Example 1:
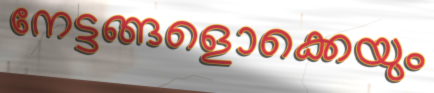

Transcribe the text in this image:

നേട്ടങ്ങളൊക്കെയും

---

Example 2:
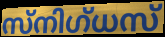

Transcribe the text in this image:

സ്നിഗ്ധസ്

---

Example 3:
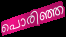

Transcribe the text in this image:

പൊരിഞ്ഞ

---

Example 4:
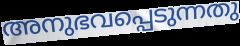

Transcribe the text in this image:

അനുഭവപ്പെടുന്നതു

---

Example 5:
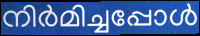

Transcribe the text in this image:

നിർമിച്ചപ്പോൾ